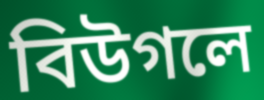
বিউগলে